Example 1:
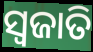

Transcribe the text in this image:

ସ୍ବଜାତି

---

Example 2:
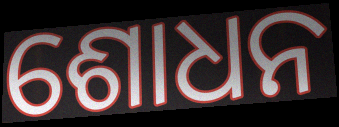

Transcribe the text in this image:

ଶୋଧନ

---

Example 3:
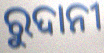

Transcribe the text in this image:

ରୁଦାନୀ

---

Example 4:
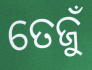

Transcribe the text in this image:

ତେଜୁଁ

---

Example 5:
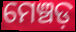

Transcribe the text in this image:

ମେଞ୍ଚଡ଼